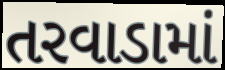
તરવાડામાં